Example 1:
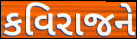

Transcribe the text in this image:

કવિરાજને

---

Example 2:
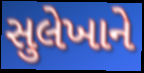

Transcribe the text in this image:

સુલેખાને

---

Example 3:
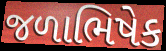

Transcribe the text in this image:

જળાભિષેક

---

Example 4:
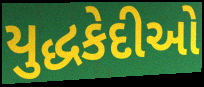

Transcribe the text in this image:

યુદ્ધકેદીઓ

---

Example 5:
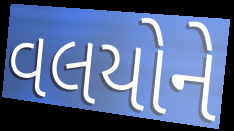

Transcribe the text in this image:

વલયોને